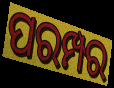
ପରମ୍ପର